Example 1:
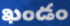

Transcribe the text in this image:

ఖండం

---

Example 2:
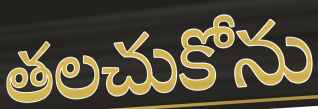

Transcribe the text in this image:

తలచుకోను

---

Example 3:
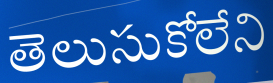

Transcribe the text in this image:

తెలుసుకోలేని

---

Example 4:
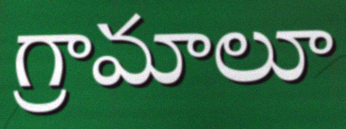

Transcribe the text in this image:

గ్రామాలూ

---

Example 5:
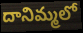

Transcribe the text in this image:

దానిమ్మలో